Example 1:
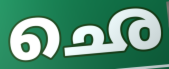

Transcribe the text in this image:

ഛെ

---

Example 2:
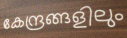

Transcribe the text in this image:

കേന്ദ്രങ്ങളിലും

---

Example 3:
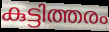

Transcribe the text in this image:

കുട്ടിത്തരം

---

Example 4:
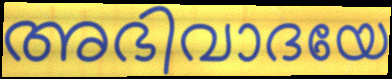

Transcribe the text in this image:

അഭിവാദയേ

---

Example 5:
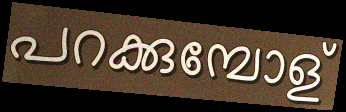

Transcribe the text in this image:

പറക്കുമ്പോള്